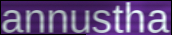
annustha